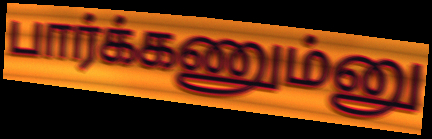
பார்க்கணும்னு